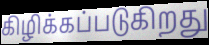
கிழிக்கப்படுகிறது